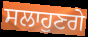
ਸਲਾਹੁਣਗੇ